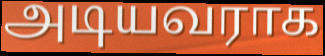
அடியவராக